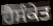
ਹੈਸੰਕੇਤ